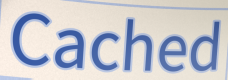
Cached